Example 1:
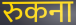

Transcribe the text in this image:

रुकना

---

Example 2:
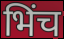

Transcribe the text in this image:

भिंच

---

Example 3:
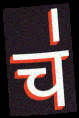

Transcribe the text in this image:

च॑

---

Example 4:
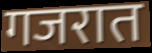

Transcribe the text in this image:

गजरात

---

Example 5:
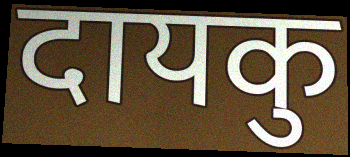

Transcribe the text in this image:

दायकु